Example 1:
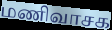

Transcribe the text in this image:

மணிவாசக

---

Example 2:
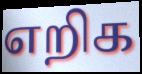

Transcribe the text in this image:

எறிக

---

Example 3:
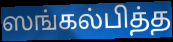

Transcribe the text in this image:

ஸங்கல்பித்த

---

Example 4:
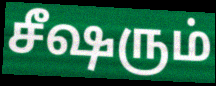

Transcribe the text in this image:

சீஷரும்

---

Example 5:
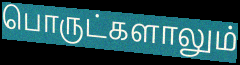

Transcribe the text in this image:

பொருட்களாலும்